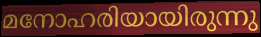
മനോഹരിയായിരുന്നു